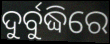
ଦୁର୍ବୁଦ୍ଧିରେ